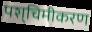
पश्चिमीकरण